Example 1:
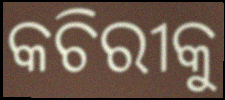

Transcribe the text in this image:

କଚିରୀକୁ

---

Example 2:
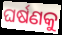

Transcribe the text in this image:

ଘର୍ଷଣକୁ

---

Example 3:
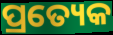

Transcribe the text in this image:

ପ୍ରତ୍ୟେକ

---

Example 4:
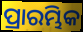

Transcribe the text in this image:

ପ୍ରାରମ୍ଭିକ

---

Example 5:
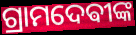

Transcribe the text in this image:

ଗ୍ରାମଦେଵୀଙ୍କ